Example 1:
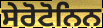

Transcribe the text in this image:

ਸੇਰੋਟੋਨਿਨ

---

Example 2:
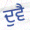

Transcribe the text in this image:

ਦੁਵੈ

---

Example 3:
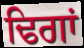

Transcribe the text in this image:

ਢਿਗਾਂ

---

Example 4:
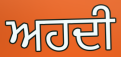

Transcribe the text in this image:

ਅਹਦੀ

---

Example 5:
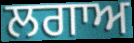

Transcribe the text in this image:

ਲਗਾਅ